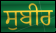
ਸੁਬੀਰ